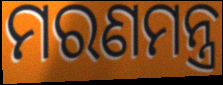
ମରଣମନ୍ତ୍ର